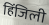
हिंजिली